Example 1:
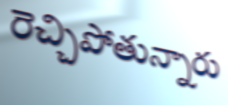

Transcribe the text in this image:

రెచ్చిపోతున్నారు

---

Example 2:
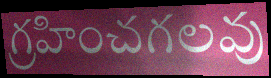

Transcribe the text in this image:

గ్రహించగలవు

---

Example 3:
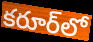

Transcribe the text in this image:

కరూర్‌లో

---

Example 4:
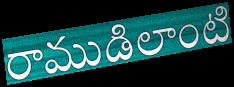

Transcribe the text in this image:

రాముడిలాంటి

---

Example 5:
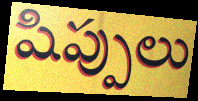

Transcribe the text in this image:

షిప్పులు